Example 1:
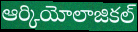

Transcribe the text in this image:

ఆర్కియోలాజికల్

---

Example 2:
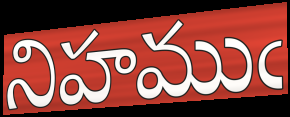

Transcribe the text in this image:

నిహముఁ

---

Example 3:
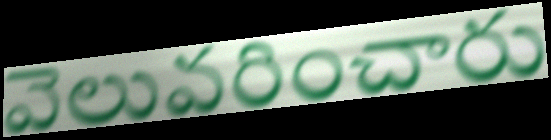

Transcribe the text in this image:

వెలువరించారు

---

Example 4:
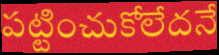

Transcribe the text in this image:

పట్టించుకోలేదనే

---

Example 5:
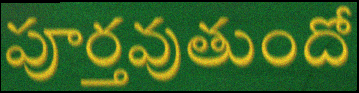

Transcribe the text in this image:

పూర్తవుతుందో